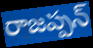
రాజప్పన్